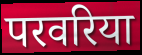
परवरिया